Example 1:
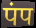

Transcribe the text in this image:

पंप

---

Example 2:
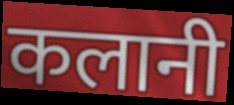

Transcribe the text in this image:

कलानी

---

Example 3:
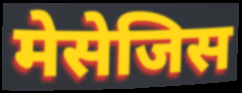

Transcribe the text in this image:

मेसेजिस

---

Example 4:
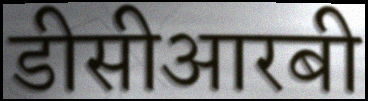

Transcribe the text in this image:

डीसीआरबी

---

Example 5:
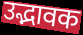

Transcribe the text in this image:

उद्भावक